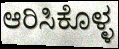
ಆರಿಸಿಕೊಳ್ಳ